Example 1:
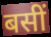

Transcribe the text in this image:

बसीं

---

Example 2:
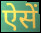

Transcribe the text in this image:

ऐसें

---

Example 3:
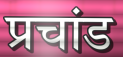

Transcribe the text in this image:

प्रचांड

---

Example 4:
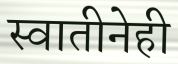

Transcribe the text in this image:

स्वातीनेही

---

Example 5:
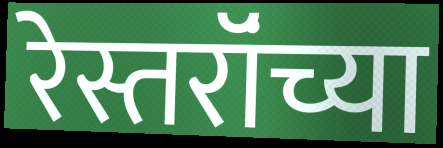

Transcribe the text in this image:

रेस्तरॉंच्या